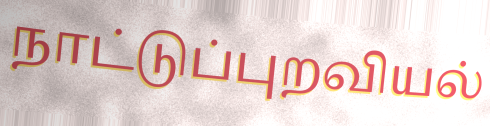
நாட்டுப்புறவியல்